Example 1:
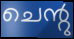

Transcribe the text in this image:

ചെന്റു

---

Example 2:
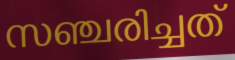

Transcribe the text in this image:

സഞ്ചരിച്ചത്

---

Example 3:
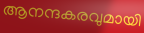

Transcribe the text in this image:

ആനന്ദകരവുമായി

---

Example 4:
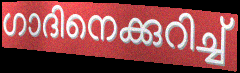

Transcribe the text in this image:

ഗാദിനെക്കുറിച്ച്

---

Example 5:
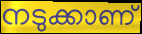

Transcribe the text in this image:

നടുക്കാണ്